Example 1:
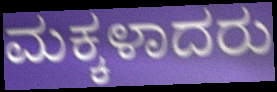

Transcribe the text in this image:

ಮಕ್ಕಳಾದರು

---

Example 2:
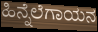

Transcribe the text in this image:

ಹಿನ್ನೆಲೆಗಾಯನ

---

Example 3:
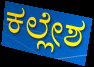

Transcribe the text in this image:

ಕಲ್ಲೇಶ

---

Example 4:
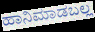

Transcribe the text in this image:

ಹಾನಿಮಾಡಬಲ್ಲ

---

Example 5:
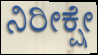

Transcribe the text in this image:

ನಿರೀಕ್ಷೇ